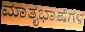
ಮಾತೃಭಾಷೆಗಳ